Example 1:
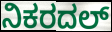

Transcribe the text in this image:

ನಿಕರದಲ್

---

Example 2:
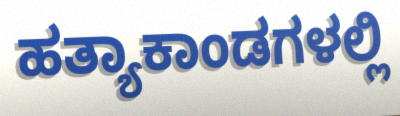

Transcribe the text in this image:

ಹತ್ಯಾಕಾಂಡಗಳಲ್ಲಿ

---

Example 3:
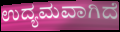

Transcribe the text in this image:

ಉದ್ಯಮವಾಗಿದೆ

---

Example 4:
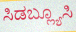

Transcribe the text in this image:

ಸಿಡಬ್ಲ್ಯೂಸಿ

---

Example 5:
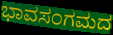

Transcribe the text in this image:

ಭಾವಸಂಗಮದ